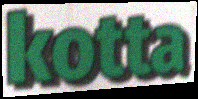
kotta